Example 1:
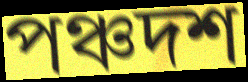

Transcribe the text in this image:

পঞ্চদশ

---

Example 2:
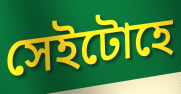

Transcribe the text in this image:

সেইটোহে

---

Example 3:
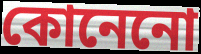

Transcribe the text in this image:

কোনেনো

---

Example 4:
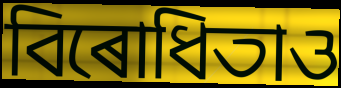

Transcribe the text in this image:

বিৰোধিতাও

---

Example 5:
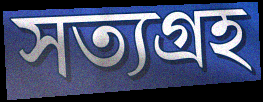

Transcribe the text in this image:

সত্যগ্ৰহ